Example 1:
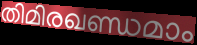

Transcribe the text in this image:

തിമിരഖണ്ഡമാം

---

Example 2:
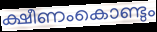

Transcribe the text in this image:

ക്ഷീണംകൊണ്ടും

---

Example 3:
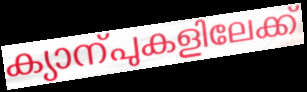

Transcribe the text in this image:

ക്യാന്പുകളിലേക്ക്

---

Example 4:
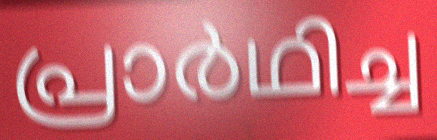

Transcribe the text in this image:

പ്രാർഥിച്ച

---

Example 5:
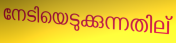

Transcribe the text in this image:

നേടിയെടുക്കുന്നതില്